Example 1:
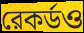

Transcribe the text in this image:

রেকর্ডও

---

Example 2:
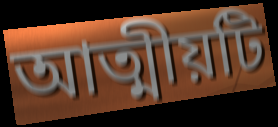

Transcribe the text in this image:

আত্মীয়টি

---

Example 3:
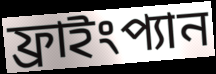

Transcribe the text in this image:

ফ্রাইংপ্যান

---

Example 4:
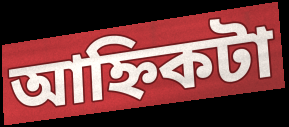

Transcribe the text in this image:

আহ্নিকটা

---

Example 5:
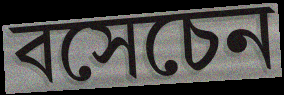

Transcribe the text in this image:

বসেচেন